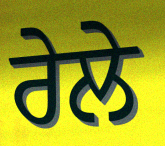
ਰੇਲੇ